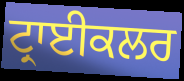
ਟ੍ਰਾਈਕਲਰ